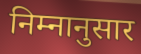
निम्नानुसार